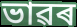
ভাৱৰ